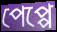
পেপ্পে